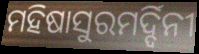
ମହିଷାସୁରମର୍ଦ୍ଦିନୀ